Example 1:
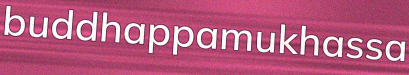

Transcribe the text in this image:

buddhappamukhassa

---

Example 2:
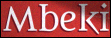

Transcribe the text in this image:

Mbeki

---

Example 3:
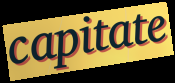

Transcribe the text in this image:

capitate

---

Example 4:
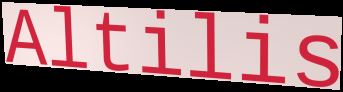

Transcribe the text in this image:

Altilis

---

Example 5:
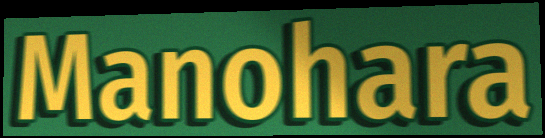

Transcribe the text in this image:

Manohara